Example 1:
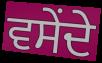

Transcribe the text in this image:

ਵਸੇਂਦੇ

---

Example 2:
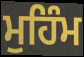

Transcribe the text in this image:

ਮੁਹਿੰਮ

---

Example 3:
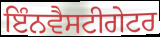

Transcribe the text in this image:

ਇੰਨਵੈਸਟੀਗੇਟਰ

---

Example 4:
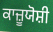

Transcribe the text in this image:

ਕਾਜ਼ੂਯੋਸ਼ੀ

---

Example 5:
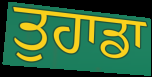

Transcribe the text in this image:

ਤੁਹਾਡਾ